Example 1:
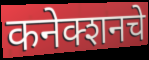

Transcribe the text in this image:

कनेक्शनचे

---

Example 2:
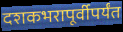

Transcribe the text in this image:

दशकभरापूर्वीपर्यंत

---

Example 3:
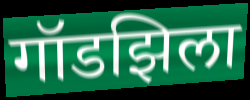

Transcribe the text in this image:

गॉडझिला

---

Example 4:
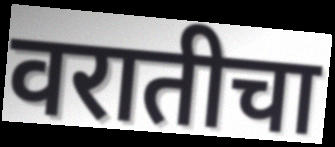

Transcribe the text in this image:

वरातीचा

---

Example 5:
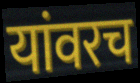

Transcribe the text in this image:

यांवरच